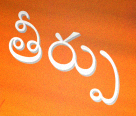
తీర్పు